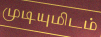
முடியுமிடம்